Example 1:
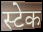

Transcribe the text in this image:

स्टेक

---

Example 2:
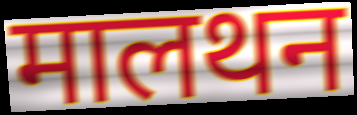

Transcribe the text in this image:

मालथन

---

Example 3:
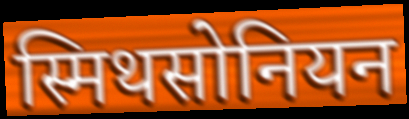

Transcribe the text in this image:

स्मिथसोनियन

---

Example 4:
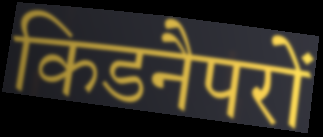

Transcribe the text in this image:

किडनैपरों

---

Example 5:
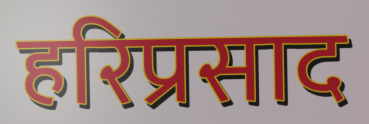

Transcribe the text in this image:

हरिप्रसाद